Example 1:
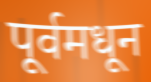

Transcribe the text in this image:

पूर्वमधून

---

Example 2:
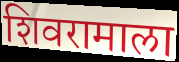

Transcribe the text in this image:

शिवरामाला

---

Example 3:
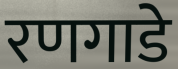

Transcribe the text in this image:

रणगाडे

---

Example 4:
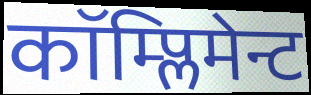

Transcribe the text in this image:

कॉम्प्लिमेन्ट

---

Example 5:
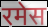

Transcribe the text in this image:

रमेस